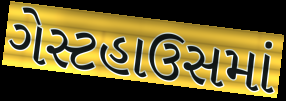
ગેસ્ટહાઉસમાં